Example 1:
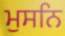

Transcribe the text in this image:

ਮੁਸਨਿ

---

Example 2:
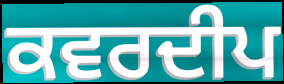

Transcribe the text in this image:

ਕਵਰਦੀਪ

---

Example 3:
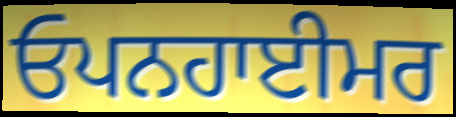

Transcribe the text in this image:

ਓਪਨਹਾਈਮਰ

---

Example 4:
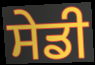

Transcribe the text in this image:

ਸੇਡੀ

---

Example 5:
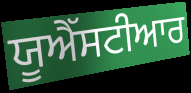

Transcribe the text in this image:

ਯੂਐੱਸਟੀਆਰ